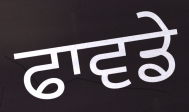
ਫਾਵਡੇ